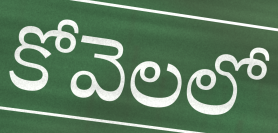
కోవెలలో